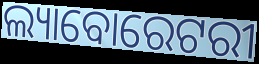
ଲ୍ୟାବୋରେଟରୀ